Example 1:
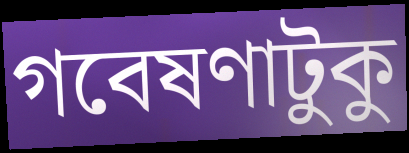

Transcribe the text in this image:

গবেষণাটুকু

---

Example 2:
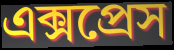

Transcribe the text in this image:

এক্সপ্রেস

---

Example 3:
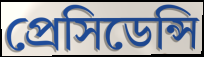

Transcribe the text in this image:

প্রেসিডেন্সি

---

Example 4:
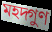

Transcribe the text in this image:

মহদ্গুণ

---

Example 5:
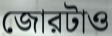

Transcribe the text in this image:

জোরটাও